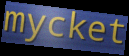
mycket